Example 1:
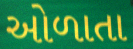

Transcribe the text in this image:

ઓળાતા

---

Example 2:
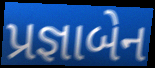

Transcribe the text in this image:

પ્રજ્ઞાબેન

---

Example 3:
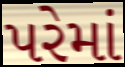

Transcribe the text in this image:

પરેમાં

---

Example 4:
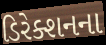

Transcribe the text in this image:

ડિરેક્શનના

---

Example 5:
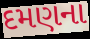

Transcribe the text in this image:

દમણના